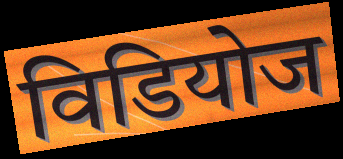
विडियोज